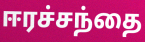
ஈரச்சந்தை